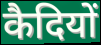
कैदियों